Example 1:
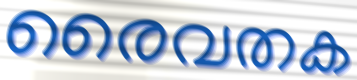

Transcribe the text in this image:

രൈവതക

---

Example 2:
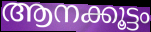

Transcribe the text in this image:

ആനക്കൂട്ടം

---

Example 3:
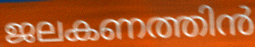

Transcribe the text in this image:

ജലകണത്തിൻ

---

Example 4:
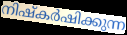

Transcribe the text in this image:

നിഷ്കർഷിക്കുന്ന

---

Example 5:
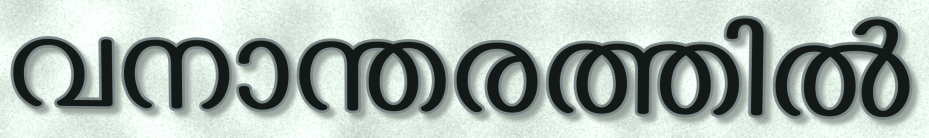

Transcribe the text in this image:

വനാന്തരത്തിൽ